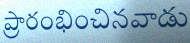
ప్రారంభించినవాడు